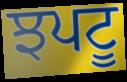
ਝਪਟੂ